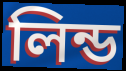
লিন্ড